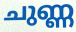
ചുണ്ണ